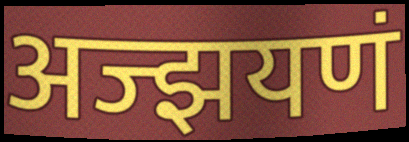
अज्झयणं